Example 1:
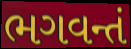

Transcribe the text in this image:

ભગવન્તં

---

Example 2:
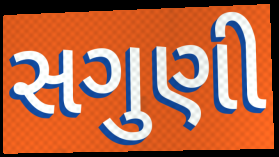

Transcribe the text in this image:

સગુણી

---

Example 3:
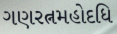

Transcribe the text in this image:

ગણરત્નમહોદધિ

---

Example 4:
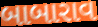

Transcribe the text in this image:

બાબારાવ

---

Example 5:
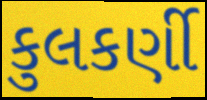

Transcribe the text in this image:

કુલકર્ણી